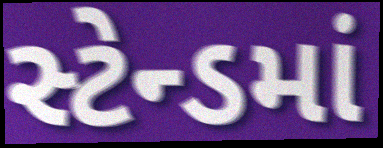
સ્ટેન્ડમાં